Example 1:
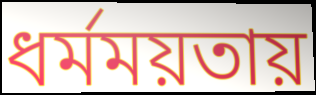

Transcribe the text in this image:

ধর্মময়তায়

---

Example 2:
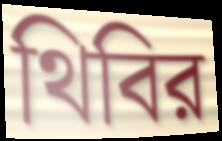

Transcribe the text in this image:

থিবির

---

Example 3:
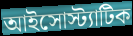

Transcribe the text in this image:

আইসোস্ট্যাটিক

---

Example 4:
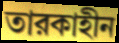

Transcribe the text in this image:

তারকাহীন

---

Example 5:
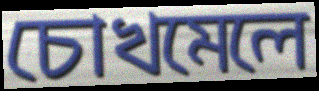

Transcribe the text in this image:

চোখমেলে